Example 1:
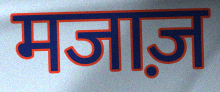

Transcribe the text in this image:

मजाज़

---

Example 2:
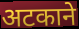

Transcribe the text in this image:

अटकाने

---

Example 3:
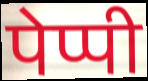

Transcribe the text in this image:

पेप्पी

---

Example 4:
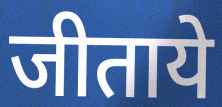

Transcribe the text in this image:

जीताये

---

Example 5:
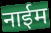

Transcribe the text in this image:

नाईम